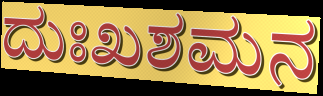
ದುಃಖಶಮನ